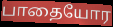
பாதையோர